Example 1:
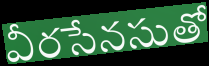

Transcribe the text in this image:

వీరసేనసుతో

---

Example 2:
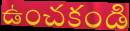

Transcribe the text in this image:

ఉంచకండి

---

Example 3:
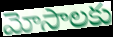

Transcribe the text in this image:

మోసాలకు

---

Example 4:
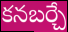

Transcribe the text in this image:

కనబర్చే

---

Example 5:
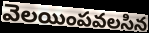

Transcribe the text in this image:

వెలయింపవలసిన